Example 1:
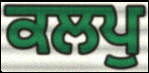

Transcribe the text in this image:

ਕਲਪੁ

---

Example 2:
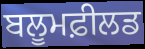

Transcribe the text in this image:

ਬਲੂਮਫ਼ੀਲਡ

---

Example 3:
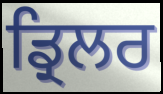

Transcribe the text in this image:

ਡ੍ਰਿਲਰ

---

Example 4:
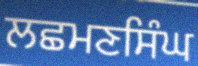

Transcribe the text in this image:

ਲਛਮਣਸਿੰਘ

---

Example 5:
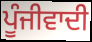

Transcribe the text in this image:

ਪੂੰਜੀਵਾਦੀ